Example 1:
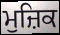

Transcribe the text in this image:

ਮੁਜ਼ਿਕ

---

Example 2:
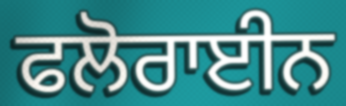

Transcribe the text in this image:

ਫਲੋਰਾਈਨ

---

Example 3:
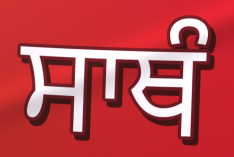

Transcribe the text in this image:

ਸਾਥੰ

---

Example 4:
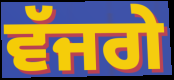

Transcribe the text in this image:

ਵੱਜਗੇ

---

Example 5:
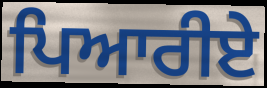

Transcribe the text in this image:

ਪਿਆਰੀਏ